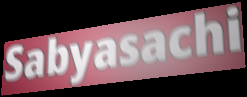
Sabyasachi